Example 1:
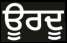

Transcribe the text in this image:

ਊਰਦੂ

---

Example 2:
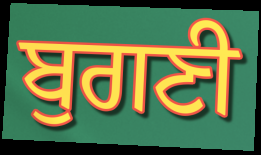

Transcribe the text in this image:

ਬੁਗਣੀ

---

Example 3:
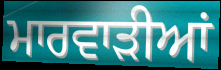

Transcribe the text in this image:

ਮਾਰਵਾੜੀਆਂ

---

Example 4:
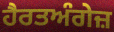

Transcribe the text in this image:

ਹੈਰਤਅੰਗੇਜ਼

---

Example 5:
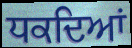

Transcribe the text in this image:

ਧਕਦਿਆਂ